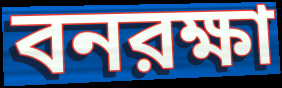
বনরক্ষা